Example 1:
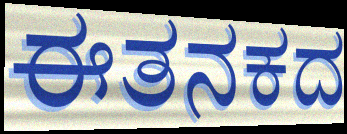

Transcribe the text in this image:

ಈತನಕದ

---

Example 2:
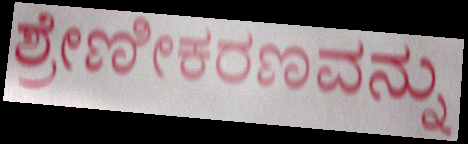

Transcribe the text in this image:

ಶ್ರೇಣೀಕರಣವನ್ನು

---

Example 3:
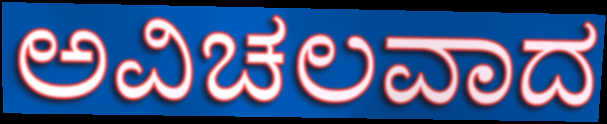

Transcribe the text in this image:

ಅವಿಚಲವಾದ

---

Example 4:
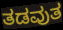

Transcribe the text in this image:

ತಡವುತ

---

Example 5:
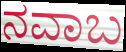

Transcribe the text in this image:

ನವಾಬ